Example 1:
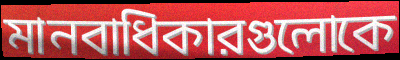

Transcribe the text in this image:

মানবাধিকারগুলোকে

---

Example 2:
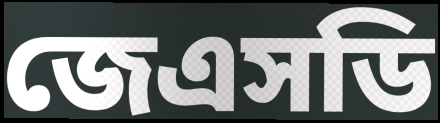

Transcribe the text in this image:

জেএসডি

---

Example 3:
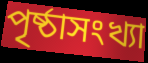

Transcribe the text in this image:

পৃষ্ঠাসংখ্যা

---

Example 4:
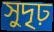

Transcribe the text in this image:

সুদৃঢ়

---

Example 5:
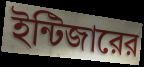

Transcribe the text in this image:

ইন্টিজারের